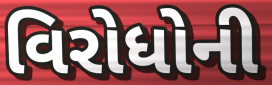
વિરોધોની